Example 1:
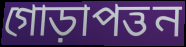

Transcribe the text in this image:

গোড়াপত্তন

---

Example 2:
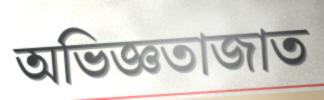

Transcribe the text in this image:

অভিজ্ঞতাজাত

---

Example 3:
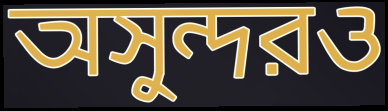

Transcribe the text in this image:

অসুন্দরও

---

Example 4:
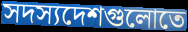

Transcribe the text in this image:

সদস্যদেশগুলোতে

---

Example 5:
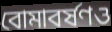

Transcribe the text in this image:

বোমাবর্ষণও